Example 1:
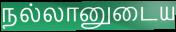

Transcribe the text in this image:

நல்லானுடைய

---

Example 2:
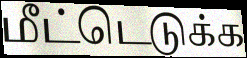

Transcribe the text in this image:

மீட்டெடுக்க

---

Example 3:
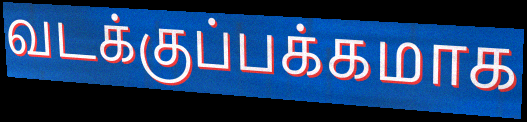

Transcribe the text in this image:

வடக்குப்பக்கமாக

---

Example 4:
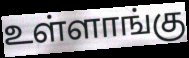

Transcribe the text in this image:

உள்ளாங்கு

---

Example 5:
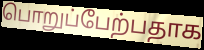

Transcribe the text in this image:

பொறுப்பேற்பதாக